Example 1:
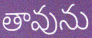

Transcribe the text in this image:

తావును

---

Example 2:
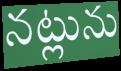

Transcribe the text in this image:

నట్లును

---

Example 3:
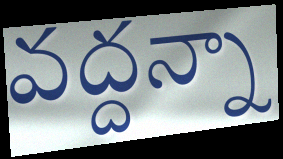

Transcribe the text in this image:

వద్దన్నా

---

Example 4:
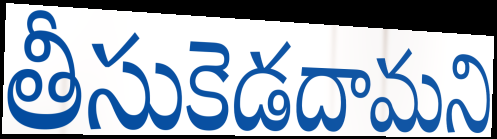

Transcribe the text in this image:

తీసుకెడదామని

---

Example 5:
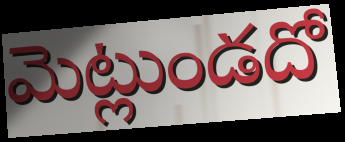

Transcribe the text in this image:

మెట్లుండదో